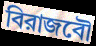
বিরাজবৌ